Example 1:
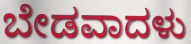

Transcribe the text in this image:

ಬೇಡವಾದಳು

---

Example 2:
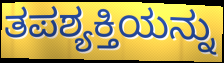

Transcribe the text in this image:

ತಪಶ್ಯಕ್ತಿಯನ್ನು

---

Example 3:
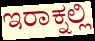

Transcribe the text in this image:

ಇರಾಕ್ನಲ್ಲಿ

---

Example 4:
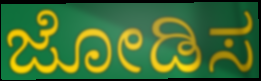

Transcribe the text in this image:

ಜೋಡಿಸ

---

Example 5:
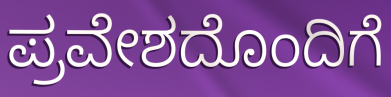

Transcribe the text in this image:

ಪ್ರವೇಶದೊಂದಿಗೆ